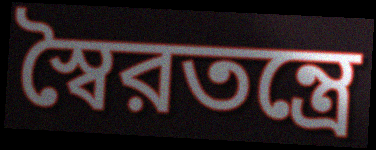
স্বৈরতন্ত্রে